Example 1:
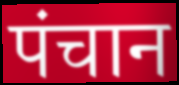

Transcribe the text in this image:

पंचान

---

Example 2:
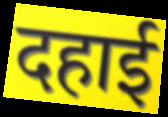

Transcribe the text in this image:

दहाई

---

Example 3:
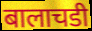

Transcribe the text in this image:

बालाचडी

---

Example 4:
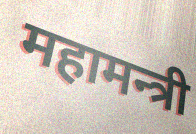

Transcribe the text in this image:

महामन्त्री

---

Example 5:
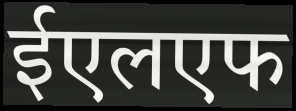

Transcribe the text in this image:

ईएलएफ